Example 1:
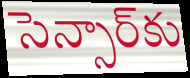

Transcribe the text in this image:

సెన్సార్‌కు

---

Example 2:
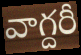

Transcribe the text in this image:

వాగ్దరీ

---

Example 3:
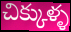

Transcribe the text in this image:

చిక్కుళ్ళ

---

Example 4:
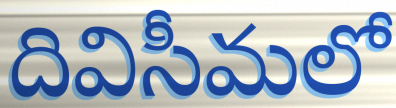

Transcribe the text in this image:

దివిసీమలో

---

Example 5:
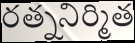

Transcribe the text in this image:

రత్ననిర్మిత